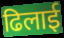
ढिलाई